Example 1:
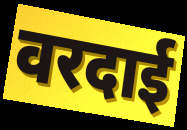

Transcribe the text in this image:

वरदाई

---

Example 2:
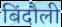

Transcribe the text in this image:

बिंदौली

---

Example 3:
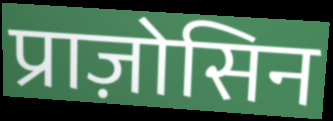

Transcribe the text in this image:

प्राज़ोसिन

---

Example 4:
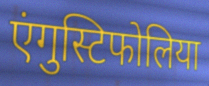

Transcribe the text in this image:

एंगुस्टिफोलिया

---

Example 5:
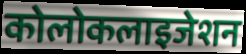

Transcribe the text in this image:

कोलोकलाइजेशन